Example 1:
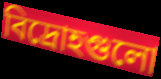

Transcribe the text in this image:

বিদ্রোহগুলো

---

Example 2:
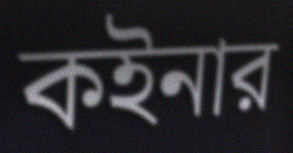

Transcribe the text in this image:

কইনার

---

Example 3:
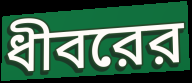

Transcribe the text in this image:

ধীবরের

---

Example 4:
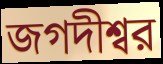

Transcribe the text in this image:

জগদীশ্বর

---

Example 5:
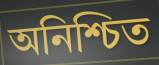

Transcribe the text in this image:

অনিশ্চিত